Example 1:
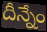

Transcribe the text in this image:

దీన్నేం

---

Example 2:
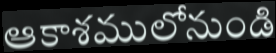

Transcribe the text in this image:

ఆకాశములోనుండి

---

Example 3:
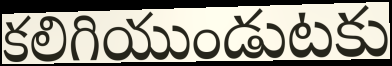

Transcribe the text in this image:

కలిగియుండుటకు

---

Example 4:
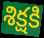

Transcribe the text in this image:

శిక్షకి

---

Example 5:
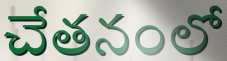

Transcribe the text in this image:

చేతనంలో